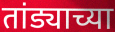
तांड्याच्या